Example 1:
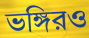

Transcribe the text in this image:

ভঙ্গিরও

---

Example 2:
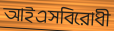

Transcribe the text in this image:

আইএসবিরোধী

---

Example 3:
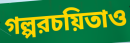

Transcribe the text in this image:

গল্পরচয়িতাও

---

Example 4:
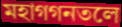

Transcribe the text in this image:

মহাগগনতলে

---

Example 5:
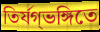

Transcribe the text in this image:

তির্যগ্ভঙ্গিতে